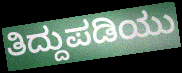
ತಿದ್ದುಪಡಿಯು